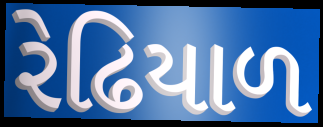
રેઢિયાળ